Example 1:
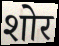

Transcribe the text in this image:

शोर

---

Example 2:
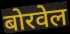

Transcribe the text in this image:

बोरवेल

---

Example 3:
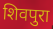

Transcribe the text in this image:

शिवपुरा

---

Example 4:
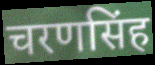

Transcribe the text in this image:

चरणसिंह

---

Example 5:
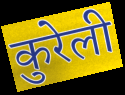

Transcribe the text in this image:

कुरेली